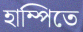
হাম্পিতে